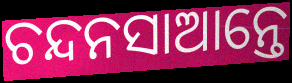
ଚନ୍ଦନସାଆନ୍ତେ